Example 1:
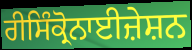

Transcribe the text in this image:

ਰੀਸਿੰਕ੍ਰੋਨਾਈਜ਼ੇਸ਼ਨ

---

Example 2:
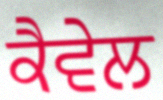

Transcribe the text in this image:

ਕੈਵੇਲ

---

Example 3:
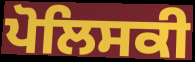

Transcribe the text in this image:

ਪੋਲਿਸਕੀ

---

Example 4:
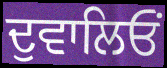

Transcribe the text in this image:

ਦੁਵਾਲਿਓਂ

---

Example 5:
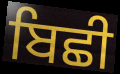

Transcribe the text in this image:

ਬਿਛੀ